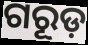
ଗରୂଡ଼